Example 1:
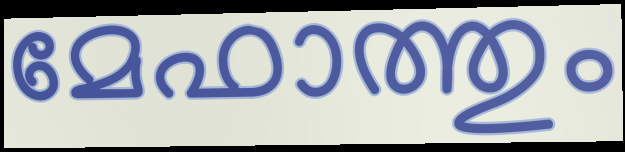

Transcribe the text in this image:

മേഫാത്തും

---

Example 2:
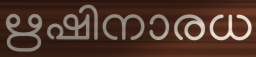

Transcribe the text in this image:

ഋഷിനാരധ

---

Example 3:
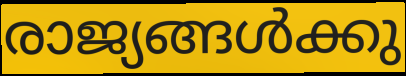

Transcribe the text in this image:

രാജ്യങ്ങൾക്കു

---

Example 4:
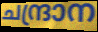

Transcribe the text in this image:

ചന്ദ്രാന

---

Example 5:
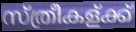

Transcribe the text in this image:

സ്ത്രീകള്ക്ക്